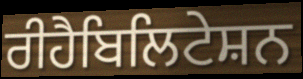
ਰੀਹੈਬਿਲਿਟੇਸ਼ਨ